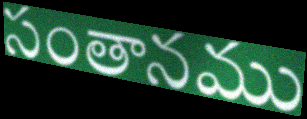
సంతానము